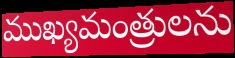
ముఖ్యమంత్రులను